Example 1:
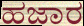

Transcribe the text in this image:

ಹಜಾರ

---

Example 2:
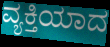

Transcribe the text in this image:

ವ್ಯಕ್ತಿಯಾದ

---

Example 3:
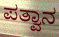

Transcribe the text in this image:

ಪತ್ವಾನ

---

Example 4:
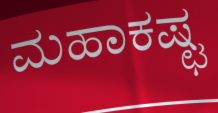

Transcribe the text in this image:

ಮಹಾಕಷ್ಟ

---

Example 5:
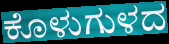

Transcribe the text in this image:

ಕೊಳುಗುಳದ